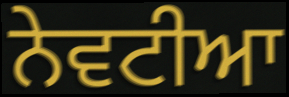
ਨੇਵਟੀਆ